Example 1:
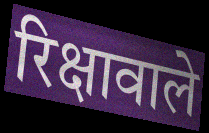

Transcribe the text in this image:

रिक्षावाले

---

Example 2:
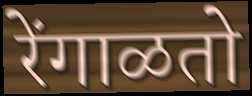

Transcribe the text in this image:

रेंगाळतो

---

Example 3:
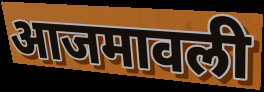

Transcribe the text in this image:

आजमावली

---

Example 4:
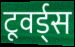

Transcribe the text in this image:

टूवर्ड्स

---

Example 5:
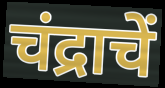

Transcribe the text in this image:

चंद्राचें